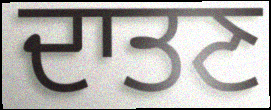
ਦਾਤਣ